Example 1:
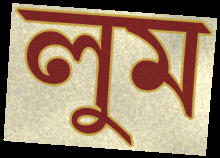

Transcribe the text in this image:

লুম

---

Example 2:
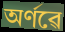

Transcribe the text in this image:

অৰ্ণৱে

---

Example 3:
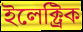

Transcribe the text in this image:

ইলেক্ট্ৰিক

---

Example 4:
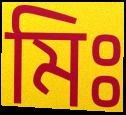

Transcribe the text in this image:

মিঃ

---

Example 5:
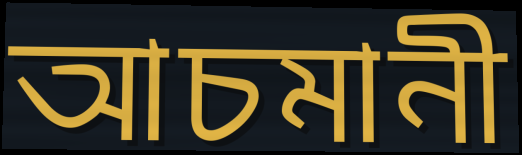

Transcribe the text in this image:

আচমানী